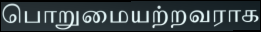
பொறுமையற்றவராக